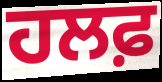
ਹਲਫ਼